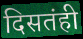
दिसतंही